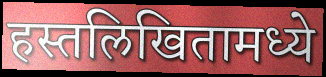
हस्तलिखितामध्ये